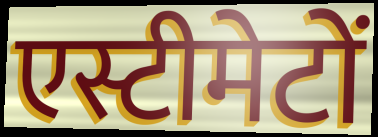
एस्टीमेटों